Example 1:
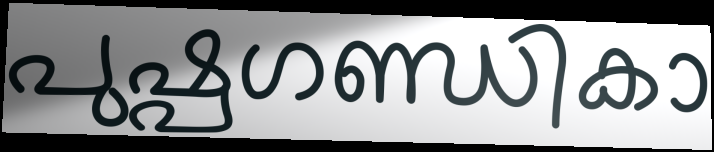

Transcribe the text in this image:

പുഷ്പഗണ്ഡികാ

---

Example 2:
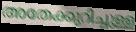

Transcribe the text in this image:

അതേക്കുറിച്ചുള്ള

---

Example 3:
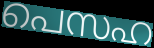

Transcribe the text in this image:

പെസഹ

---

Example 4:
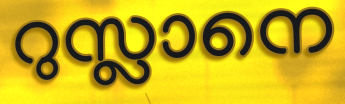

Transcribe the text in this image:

റുസ്ലാനെ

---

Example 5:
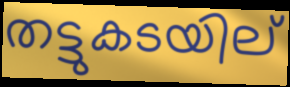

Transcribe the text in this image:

തട്ടുകടയില്